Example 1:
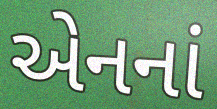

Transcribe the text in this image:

એનનાં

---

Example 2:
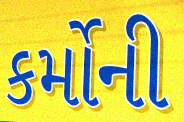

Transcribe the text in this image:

કર્મોની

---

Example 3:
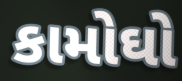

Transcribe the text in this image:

કામોઘો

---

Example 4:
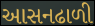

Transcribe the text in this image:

આસનઢાળી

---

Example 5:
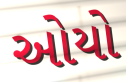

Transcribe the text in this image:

ઓયો